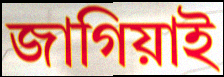
জাগিয়াই